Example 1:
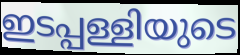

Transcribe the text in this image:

ഇടപ്പള്ളിയുടെ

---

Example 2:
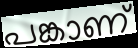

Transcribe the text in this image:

പങ്കാണ്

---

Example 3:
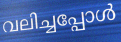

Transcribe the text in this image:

വലിച്ചപ്പോൾ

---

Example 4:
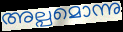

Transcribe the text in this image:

അല്പമൊന്നു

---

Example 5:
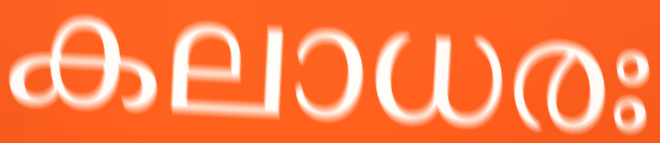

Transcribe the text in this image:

കലാധരഃ